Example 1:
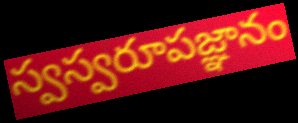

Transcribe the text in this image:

స్వస్వరూపజ్ఞానం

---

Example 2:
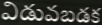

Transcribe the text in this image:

విడువబడక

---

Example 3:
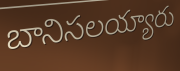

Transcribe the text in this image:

బానిసలయ్యారు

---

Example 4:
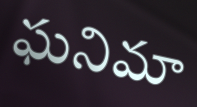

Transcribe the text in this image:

ఘనిమా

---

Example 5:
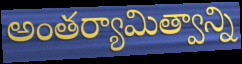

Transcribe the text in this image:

అంతర్యామిత్వాన్ని